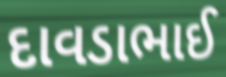
દાવડાભાઈ